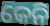
କେନି